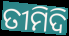
ତୀମିଦି